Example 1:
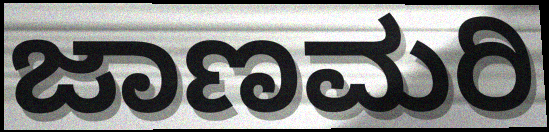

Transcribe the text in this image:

ಜಾಣಮರಿ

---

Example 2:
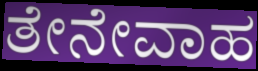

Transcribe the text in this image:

ತೇನೇವಾಹ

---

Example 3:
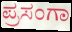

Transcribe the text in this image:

ಪ್ರಸಂಗಾ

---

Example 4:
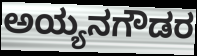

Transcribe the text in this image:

ಅಯ್ಯನಗೌಡರ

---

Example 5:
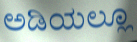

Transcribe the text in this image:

ಅಡಿಯಲ್ಲೂ